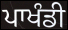
ਪਾਖੰਡੀ